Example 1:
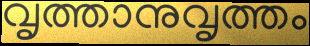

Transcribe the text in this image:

വൃത്താനുവൃത്തം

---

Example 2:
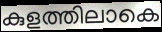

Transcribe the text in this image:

കുളത്തിലാകെ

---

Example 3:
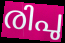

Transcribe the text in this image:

രിപു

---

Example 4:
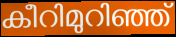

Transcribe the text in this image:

കീറിമുറിഞ്ഞ്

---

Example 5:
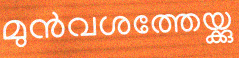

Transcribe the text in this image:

മുൻവശത്തേയ്ക്കു